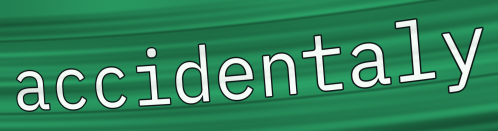
accidentaly